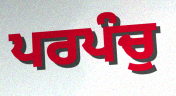
ਪਰਪੰਚੁ